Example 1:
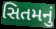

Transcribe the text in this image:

સિતમનું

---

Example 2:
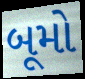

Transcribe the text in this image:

બૂમો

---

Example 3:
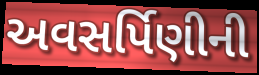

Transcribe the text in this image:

અવસર્પિણીની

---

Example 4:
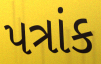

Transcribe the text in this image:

પત્રાંક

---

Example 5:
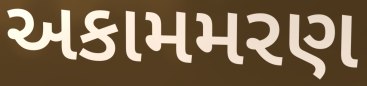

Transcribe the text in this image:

અકામમરણ